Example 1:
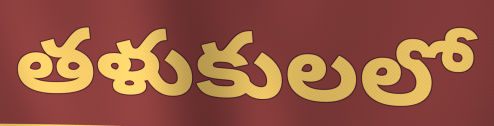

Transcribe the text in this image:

తళుకులలో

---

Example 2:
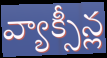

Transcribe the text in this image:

వ్యాక్సీన్ల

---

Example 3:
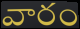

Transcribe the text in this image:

వారం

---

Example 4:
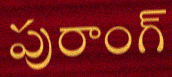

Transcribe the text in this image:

పురాంగ్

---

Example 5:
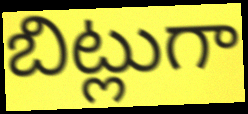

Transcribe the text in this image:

బిట్లుగా